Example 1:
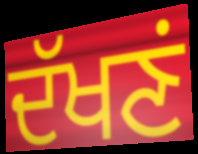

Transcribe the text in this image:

ਦੱਖਣਂ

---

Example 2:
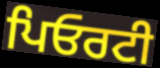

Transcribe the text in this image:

ਪਿਓਰਟੀ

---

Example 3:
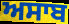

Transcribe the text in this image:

ਅਸਾਬ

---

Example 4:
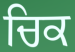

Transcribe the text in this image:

ਚਿਕ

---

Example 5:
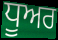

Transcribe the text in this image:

ਧੂਅਰ